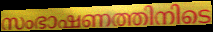
സംഭാഷണത്തിനിടെ